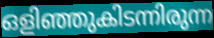
ഒളിഞ്ഞുകിടന്നിരുന്ന